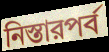
নিস্তারপর্ব